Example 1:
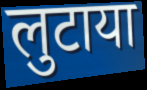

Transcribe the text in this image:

लुटाया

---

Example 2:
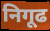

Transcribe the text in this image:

निगूढ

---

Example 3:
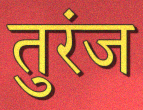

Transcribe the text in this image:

तुरंज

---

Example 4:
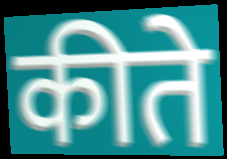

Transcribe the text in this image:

कीते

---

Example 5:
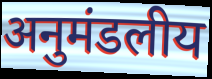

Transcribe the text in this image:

अनुमंडलीय